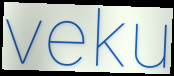
veku